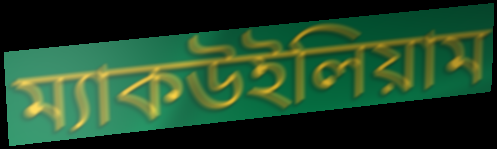
ম্যাকউইলিয়াম